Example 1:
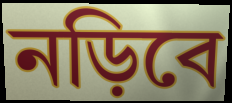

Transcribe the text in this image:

নড়িবে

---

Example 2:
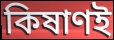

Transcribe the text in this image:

কিষাণই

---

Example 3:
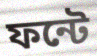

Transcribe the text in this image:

ফন্টে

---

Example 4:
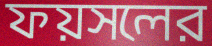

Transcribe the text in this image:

ফয়সলের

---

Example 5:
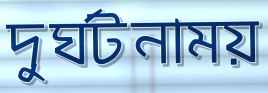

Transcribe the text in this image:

দুর্ঘটনাময়